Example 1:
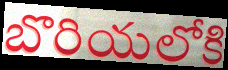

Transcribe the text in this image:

బొరియలోకి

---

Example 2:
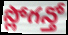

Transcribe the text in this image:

స్లోగన్తో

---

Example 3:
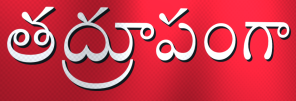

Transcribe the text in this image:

తద్రూపంగా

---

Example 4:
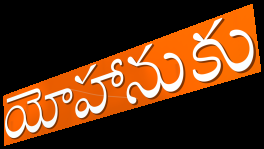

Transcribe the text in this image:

యోహానుకు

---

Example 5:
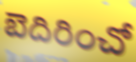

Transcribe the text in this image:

బెదిరించో